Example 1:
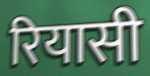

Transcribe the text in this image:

रियासी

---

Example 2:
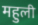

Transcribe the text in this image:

महुली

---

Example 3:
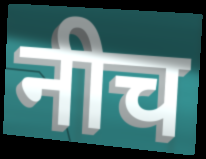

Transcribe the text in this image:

नीच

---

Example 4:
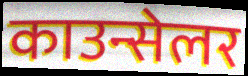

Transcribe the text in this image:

काउन्सेलर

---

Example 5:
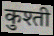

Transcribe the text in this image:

कुश्‍ती